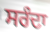
ਸਰੰਦਾ